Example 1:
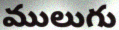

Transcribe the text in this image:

ములుగు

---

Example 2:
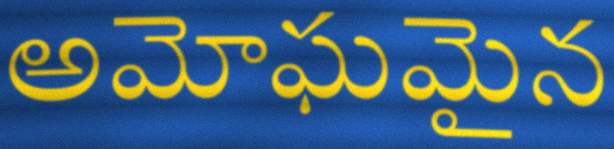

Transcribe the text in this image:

అమోఘమైన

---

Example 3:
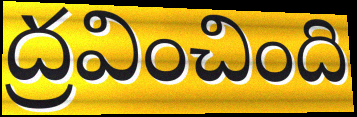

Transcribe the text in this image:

ద్రవించింది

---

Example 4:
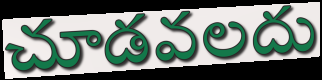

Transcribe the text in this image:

చూడవలదు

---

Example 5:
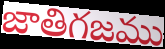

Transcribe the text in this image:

జాతిగజము